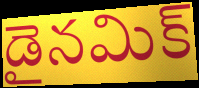
డైనమిక్